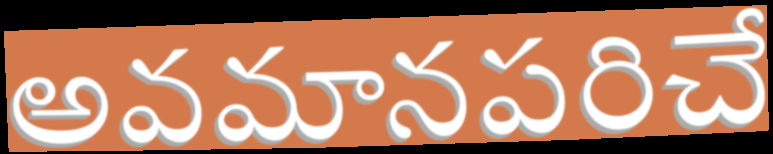
అవమానపరిచే